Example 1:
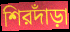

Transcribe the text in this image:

শিরদাঁড়া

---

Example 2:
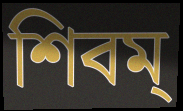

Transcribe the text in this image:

শিবম্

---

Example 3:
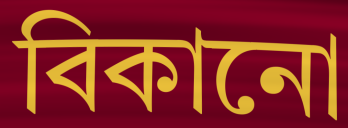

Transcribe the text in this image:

বিকানো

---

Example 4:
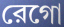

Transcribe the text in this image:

রেগো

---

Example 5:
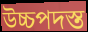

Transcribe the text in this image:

উচ্চপদস্ত